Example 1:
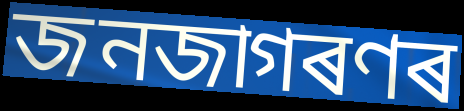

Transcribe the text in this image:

জনজাগৰণৰ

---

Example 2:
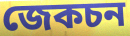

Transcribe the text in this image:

জেকচন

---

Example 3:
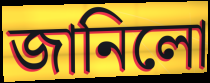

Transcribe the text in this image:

জানিলো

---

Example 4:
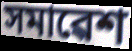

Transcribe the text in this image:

সমাৱেশ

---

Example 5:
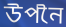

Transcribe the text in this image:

উপনৈ